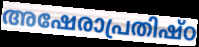
അഷേരാപ്രതിഷ്ഠ